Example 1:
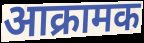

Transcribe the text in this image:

आक्रामक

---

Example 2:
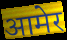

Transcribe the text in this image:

आमेर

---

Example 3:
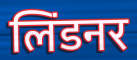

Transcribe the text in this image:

लिंडनर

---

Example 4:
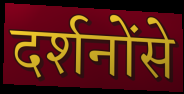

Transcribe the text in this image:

दर्शनोंसे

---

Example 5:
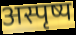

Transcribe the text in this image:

अस्पृष्य